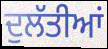
ਦੁਲੱਤੀਆਂ